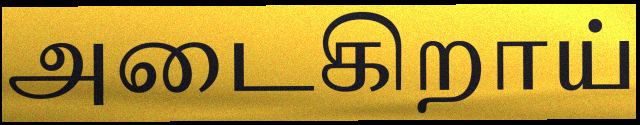
அடைகிறாய்